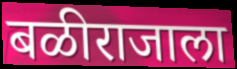
बळीराजाला